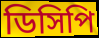
ডিসিপি